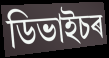
ডিভাইচৰ